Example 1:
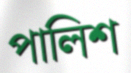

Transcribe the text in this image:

পালিশ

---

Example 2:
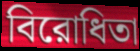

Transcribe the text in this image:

বিরোধিতা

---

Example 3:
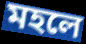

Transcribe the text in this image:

মহলে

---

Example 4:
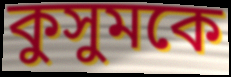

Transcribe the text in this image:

কুসুমকে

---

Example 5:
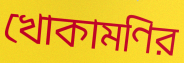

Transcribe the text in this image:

খোকামণির